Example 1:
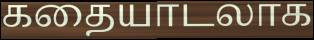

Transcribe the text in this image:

கதையாடலாக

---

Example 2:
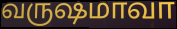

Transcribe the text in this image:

வருஷமாவா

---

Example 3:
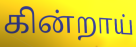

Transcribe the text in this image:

கின்றாய்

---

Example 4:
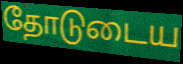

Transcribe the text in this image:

தோடுடைய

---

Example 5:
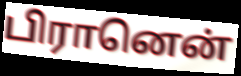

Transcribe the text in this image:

பிரானென்